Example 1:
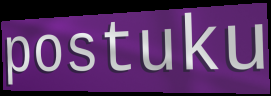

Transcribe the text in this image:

postuku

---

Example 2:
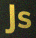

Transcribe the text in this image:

Js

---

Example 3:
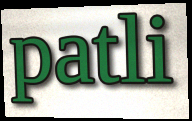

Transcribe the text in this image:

patli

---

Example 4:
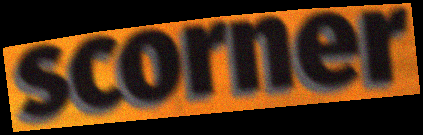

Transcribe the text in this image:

scorner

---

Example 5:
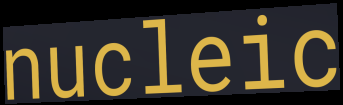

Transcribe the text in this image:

nucleic